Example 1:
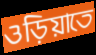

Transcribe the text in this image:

ওড়িয়াতে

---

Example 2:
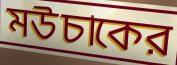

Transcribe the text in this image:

মউচাকের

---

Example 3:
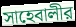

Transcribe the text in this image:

সাহেবালীর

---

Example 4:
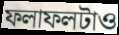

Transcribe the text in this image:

ফলাফলটাও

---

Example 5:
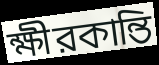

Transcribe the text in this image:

ক্ষীরকান্তি